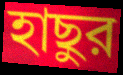
হাছুর